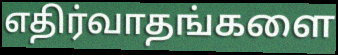
எதிர்வாதங்களை